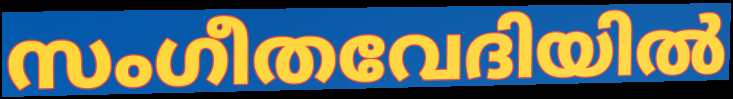
സംഗീതവേദിയിൽ